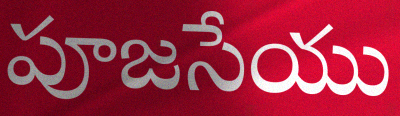
పూజసేయు